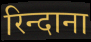
रिन्दाना